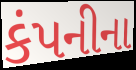
કંપનીના